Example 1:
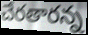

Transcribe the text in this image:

చేరతారన్న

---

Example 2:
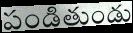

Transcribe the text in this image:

పండితుండు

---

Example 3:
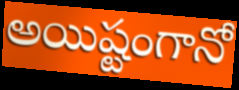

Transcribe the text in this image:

అయిష్టంగానో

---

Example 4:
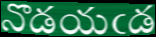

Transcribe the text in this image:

నొడయఁడ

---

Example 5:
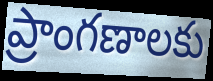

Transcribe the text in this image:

ప్రాంగణాలకు